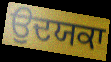
ਉਦਯਕਾ